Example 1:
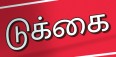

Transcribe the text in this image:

டுக்கை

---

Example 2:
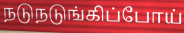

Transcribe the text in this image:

நடுநடுங்கிப்போய்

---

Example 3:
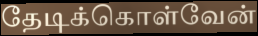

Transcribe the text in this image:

தேடிக்கொள்வேன்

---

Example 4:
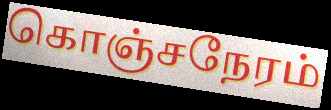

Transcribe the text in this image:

கொஞ்சநேரம்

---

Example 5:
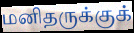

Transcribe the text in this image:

மனிதருக்குக்